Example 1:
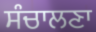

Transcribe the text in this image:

ਸੰਚਾਲਣਾ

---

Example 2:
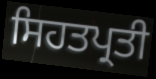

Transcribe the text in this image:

ਸਿਹਤਪ੍ਰਤੀ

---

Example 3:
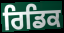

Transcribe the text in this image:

ਰਿਡਿਕ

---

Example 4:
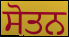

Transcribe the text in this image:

ਸੋਤਨ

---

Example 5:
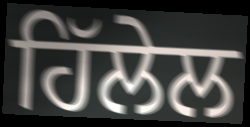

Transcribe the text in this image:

ਹਿੱਲੇਲ